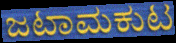
ಜಟಾಮಕುಟ